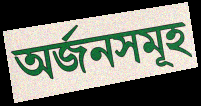
অর্জনসমূহ